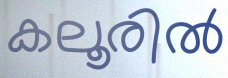
കലൂരിൽ